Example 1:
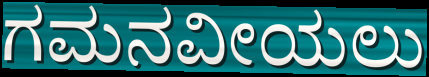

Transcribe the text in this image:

ಗಮನವೀಯಲು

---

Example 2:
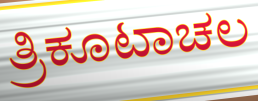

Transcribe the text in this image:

ತ್ರಿಕೂಟಾಚಲ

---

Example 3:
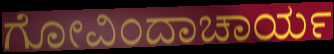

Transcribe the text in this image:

ಗೋವಿಂದಾಚಾರ್ಯ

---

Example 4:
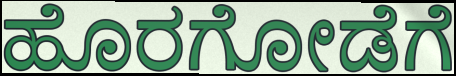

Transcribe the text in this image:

ಹೊರಗೋಡೆಗೆ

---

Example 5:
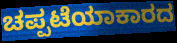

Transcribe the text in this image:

ಚಪ್ಪಟೆಯಾಕಾರದ